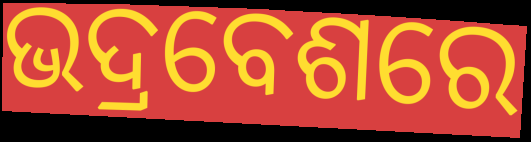
ଭଦ୍ରବେଶରେ